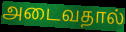
அடைவதால்